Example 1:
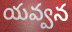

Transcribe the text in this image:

యవ్వన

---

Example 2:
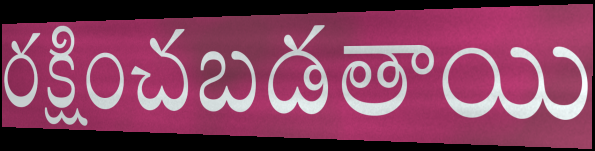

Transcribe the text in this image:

రక్షించబడతాయి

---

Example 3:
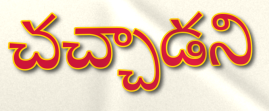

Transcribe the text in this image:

చచ్చాడని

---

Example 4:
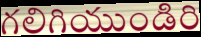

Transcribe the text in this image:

గలిగియుండిరి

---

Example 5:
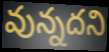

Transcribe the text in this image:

వున్నదని